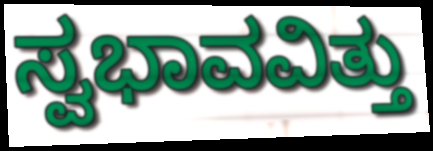
ಸ್ವಭಾವವಿತ್ತು